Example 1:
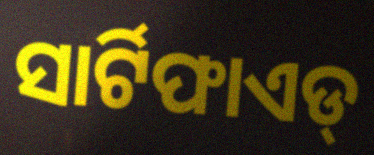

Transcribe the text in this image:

ସାର୍ଟିଫାଏଡ୍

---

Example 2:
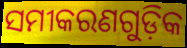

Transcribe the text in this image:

ସମୀକରଣଗୁଡ଼ିକ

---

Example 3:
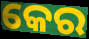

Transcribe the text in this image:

କେର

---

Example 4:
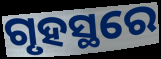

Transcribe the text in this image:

ଗୃହସ୍ଥରେ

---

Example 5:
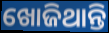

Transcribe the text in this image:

ଖୋଜିଥାନ୍ତି